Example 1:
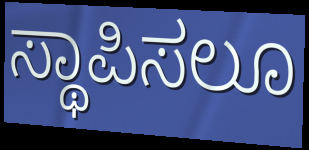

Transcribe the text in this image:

ಸ್ಥಾಪಿಸಲೂ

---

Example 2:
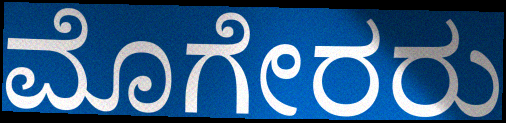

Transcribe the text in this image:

ಮೊಗೇರರು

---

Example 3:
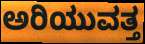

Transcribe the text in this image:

ಅರಿಯುವತ್ತ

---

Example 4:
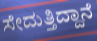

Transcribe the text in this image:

ಸೇದುತ್ತಿದ್ದಾನೆ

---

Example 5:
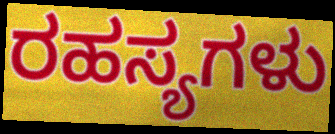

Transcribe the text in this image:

ರಹಸ್ಯಗಳು